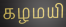
கழமயி